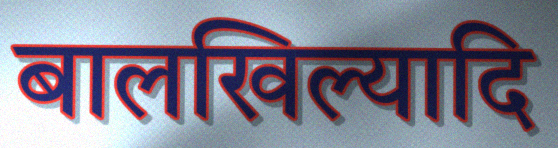
बालखिल्यादि